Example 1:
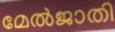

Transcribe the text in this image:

മേൽജാതി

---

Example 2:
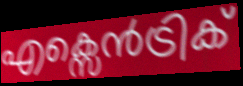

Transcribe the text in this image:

എക്സെൻട്രിക്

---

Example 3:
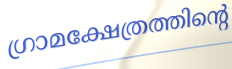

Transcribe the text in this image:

ഗ്രാമക്ഷേത്രത്തിന്റെ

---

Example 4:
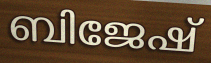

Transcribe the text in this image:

ബിജേഷ്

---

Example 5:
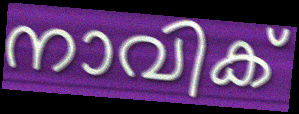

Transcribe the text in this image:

നാവിക്